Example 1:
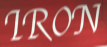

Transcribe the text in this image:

IRON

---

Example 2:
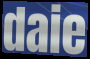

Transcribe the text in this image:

daie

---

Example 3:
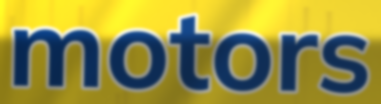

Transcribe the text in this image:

motors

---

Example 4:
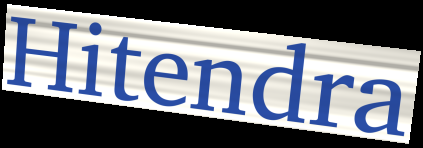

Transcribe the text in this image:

Hitendra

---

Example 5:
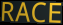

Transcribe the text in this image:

RACE